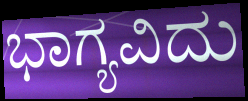
ಭಾಗ್ಯವಿದು